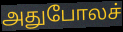
அதுபோலச்